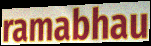
ramabhau